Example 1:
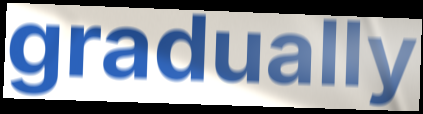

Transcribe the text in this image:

gradually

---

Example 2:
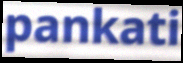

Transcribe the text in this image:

pankati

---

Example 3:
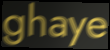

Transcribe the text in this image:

ghaye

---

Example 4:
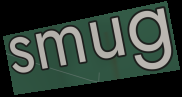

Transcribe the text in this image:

smug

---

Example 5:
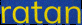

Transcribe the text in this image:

ratan